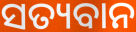
ସତ୍ୟବାନ